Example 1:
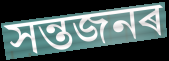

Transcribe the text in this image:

সন্তজনৰ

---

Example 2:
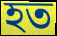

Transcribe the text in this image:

হত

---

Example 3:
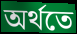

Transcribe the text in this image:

অৰ্থতে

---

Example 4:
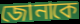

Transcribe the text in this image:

জোনাকে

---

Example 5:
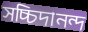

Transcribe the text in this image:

সচ্চিদানন্দ